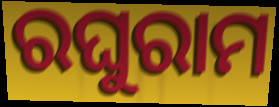
ରଘୁରାମ